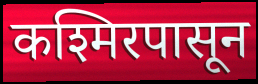
कश्मिरपासून